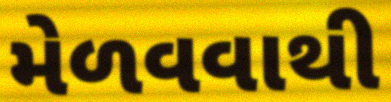
મેળવવાથી